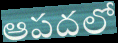
ఆపదలో